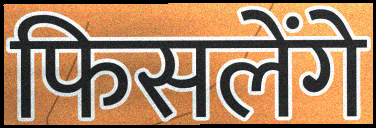
फिसलेंगे